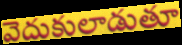
వెదుకులాడుతూ